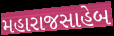
મહારાજસાહેબ